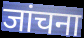
जांचना